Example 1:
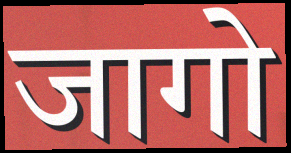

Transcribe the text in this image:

जागो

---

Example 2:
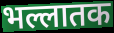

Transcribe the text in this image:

भल्लातक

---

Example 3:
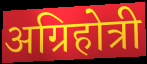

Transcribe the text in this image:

अग्रिहोत्री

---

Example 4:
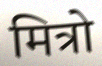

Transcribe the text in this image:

मित्रो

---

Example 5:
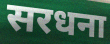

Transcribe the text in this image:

सरधना